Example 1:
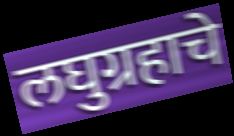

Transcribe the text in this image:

लघुग्रहाचे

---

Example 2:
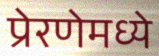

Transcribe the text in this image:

प्रेरणेमध्ये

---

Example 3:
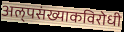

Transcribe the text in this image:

अल्पसंख्याकविरोधी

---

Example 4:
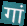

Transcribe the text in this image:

गां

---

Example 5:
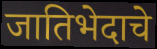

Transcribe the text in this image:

जातिभेदाचे